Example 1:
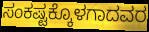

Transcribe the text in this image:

ಸಂಕಷ್ಟಕ್ಕೊಳಗಾದವರ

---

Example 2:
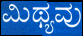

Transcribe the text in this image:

ಮಿಥ್ಯವು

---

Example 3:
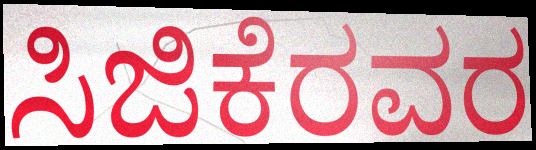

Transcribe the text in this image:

ಸಿಜಿಕೆರವರ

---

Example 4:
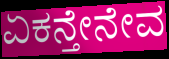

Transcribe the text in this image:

ಏಕನ್ತೇನೇವ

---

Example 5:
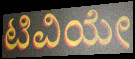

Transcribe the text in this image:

ಟಿವಿಯೇ